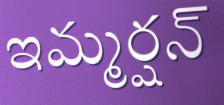
ఇమ్మర్షన్